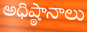
అధిష్ఠానాలు